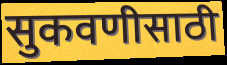
सुकवणीसाठी